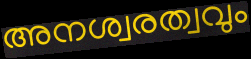
അനശ്വരത്വവും